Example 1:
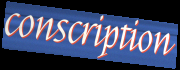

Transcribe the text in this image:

conscription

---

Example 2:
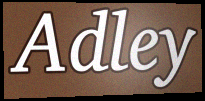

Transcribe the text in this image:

Adley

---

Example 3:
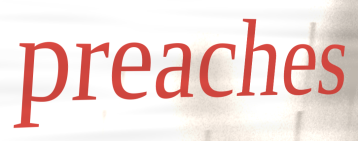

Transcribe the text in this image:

preaches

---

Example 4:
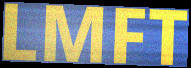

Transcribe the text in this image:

LMFT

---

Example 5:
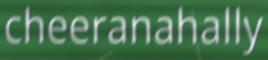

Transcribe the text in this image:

cheeranahally